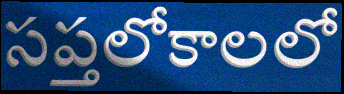
సప్తలోకాలలో